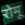
रोमू